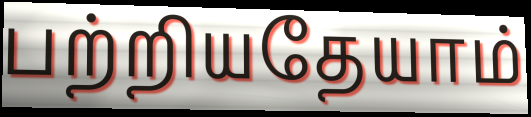
பற்றியதேயாம்